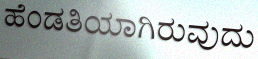
ಹೆಂಡತಿಯಾಗಿರುವುದು